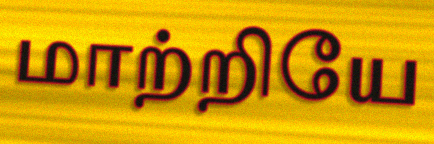
மாற்றியே